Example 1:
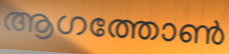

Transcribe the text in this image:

ആഗത്തോൺ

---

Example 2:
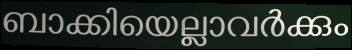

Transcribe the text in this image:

ബാക്കിയെല്ലാവർക്കും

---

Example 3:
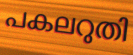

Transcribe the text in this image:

പകലറുതി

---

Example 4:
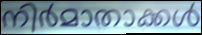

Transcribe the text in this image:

നിർമാതാക്കൾ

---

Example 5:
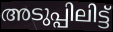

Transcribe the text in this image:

അടുപ്പിലിട്ട്